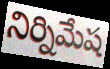
నిర్నిమేష